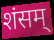
शंसम्